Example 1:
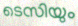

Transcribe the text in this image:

ടെസിയും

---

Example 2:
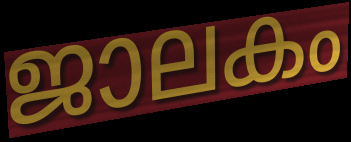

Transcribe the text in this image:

ജാലകം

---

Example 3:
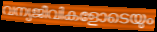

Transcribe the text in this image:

വന്യജീവികളോടെയും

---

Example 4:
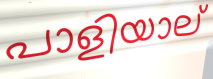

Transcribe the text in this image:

പാളിയാല്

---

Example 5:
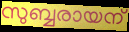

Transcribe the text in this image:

സുബ്ബരായന്